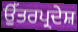
ਉੱਤਰਪ੍ਰਦੇਸ਼